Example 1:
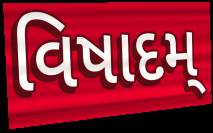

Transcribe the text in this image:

વિષાદમ્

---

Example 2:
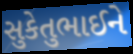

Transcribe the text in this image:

સુકેતુભાઈને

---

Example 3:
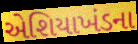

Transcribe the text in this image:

એશિયાખંડના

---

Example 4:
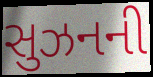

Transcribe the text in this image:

સુઝનની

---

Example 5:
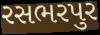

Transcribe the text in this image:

રસભરપુર